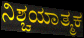
ನಿಶ್ಚಯಾತ್ಮಕ